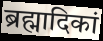
ब्रह्मादिकां